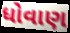
ધોવાણ